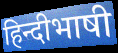
हिन्दीभाषी